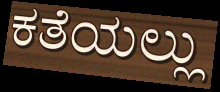
ಕತೆಯಲ್ಲು